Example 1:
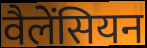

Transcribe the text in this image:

वैलेंसियन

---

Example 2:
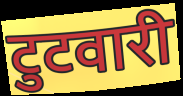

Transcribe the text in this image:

टुटवारी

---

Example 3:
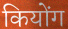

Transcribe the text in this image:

कियोंग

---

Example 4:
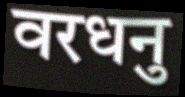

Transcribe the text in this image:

वरधनु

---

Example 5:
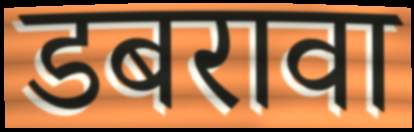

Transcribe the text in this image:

डबरावा